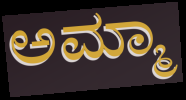
ಅಮ್ಮಾ